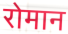
रोमान